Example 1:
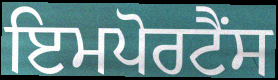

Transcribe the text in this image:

ਇਮਪੋਰਟੈਂਸ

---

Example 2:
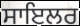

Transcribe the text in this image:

ਸਾਇਲਰ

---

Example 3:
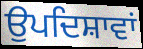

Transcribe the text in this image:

ਉਪਦਿਸ਼ਾਵਾਂ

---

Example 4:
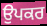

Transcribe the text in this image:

ਉਪਕਰ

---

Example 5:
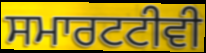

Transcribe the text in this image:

ਸਮਾਰਟਟੀਵੀ